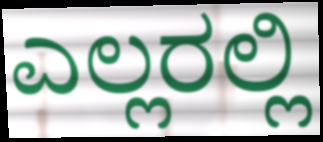
ಎಲ್ಲರಲ್ಲಿ